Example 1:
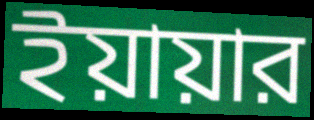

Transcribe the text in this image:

ইয়ায়ার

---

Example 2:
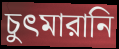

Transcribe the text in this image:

চুৎমারানি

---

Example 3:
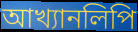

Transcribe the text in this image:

আখ্যানলিপি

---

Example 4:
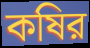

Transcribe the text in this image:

কষির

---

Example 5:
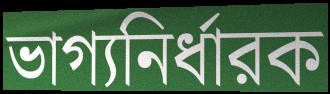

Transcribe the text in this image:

ভাগ্যনির্ধারক